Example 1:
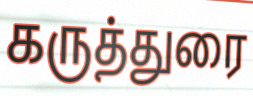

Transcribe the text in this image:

கருத்துரை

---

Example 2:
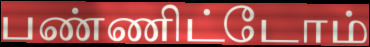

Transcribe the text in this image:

பண்ணிட்டோம்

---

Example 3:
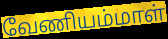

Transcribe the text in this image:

வேணியம்மாள்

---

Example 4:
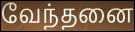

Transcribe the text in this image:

வேந்தனை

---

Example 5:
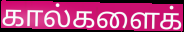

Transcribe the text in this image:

கால்களைக்